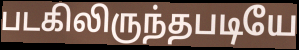
படகிலிருந்தபடியே